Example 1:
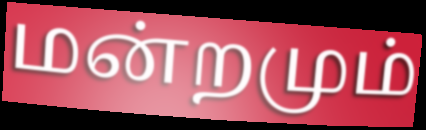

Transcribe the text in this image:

மன்றமும்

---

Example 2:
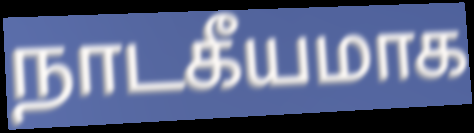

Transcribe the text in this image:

நாடகீயமாக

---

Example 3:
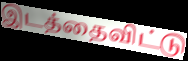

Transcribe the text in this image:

இடத்தைவிட்டு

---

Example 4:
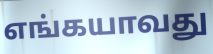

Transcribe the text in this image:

எங்கயாவது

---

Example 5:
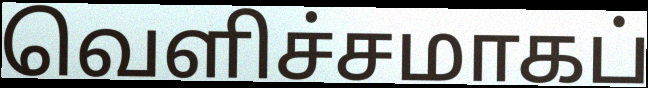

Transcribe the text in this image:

வெளிச்சமாகப்